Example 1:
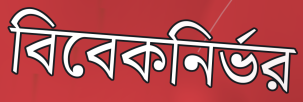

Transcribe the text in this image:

বিবেকনির্ভর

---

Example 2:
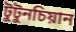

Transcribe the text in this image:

টুটুনচিয়ান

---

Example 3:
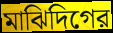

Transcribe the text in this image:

মাঝিদিগের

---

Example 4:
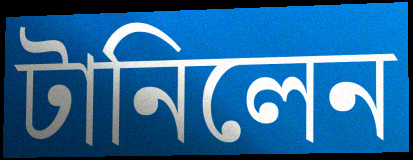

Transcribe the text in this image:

টানিলেন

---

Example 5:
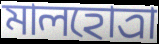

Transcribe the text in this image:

মালহোত্রা